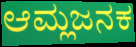
ಆಮ್ಲಜನಕ